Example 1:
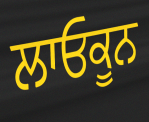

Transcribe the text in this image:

ਲਾਓਕੂਨ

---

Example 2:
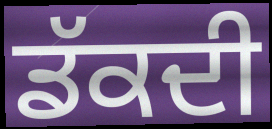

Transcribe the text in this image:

ਡੱਕਦੀ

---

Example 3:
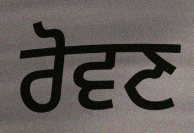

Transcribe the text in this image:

ਰੋਵਣ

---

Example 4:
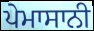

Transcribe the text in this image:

ਪੇਮਾਸਾਨੀ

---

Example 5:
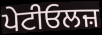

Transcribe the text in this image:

ਪੇਟੀਓਲਜ਼